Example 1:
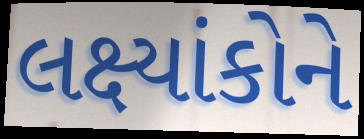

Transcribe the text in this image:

લક્ષ્યાંકોને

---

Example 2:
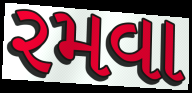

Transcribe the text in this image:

રમવા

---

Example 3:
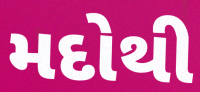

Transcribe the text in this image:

મદોથી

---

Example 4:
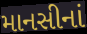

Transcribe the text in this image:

માનસીનાં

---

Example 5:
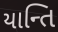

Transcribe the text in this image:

યાન્તિ